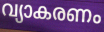
വ്യാകരണം